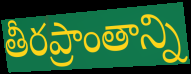
తీరప్రాంతాన్ని